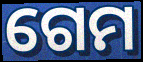
ଗେମ